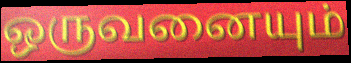
ஒருவனையும்